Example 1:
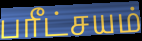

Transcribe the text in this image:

பரீட்சயம்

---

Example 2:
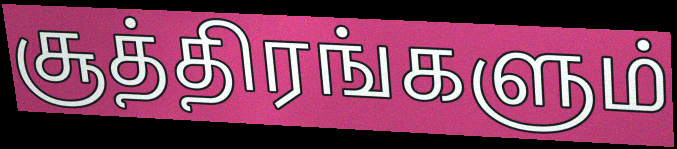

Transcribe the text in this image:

சூத்திரங்களும்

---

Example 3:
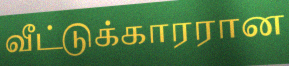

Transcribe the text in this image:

வீட்டுக்காரரான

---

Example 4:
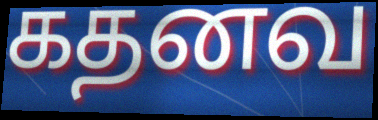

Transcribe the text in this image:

கதனவ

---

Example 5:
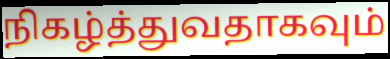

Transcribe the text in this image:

நிகழ்த்துவதாகவும்